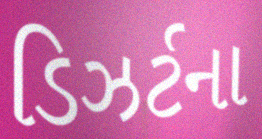
ડિઝર્ટના